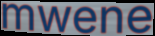
mwene